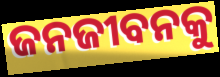
ଜନଜୀବନକୁ